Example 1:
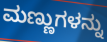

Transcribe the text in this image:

ಮಣ್ಣುಗಳನ್ನು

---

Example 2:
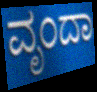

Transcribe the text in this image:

ವೃಂದಾ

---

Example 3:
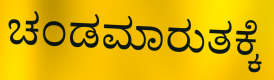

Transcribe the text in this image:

ಚಂಡಮಾರುತಕ್ಕೆ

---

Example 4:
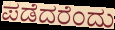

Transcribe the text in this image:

ಪಡೆದರೆಂದು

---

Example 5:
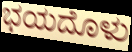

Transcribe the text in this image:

ಭಯದೊಳು